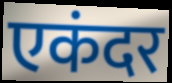
एकंदर